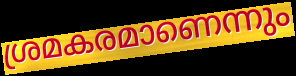
ശ്രമകരമാണെന്നും